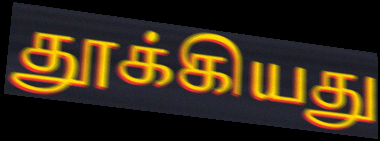
தூக்கியது